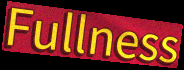
Fullness